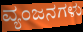
ವ್ಯಂಜನಗಳು